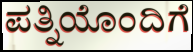
ಪತ್ನಿಯೊಂದಿಗೆ